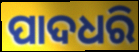
ପାଦଧରି